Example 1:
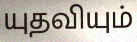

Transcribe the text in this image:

யுதவியும்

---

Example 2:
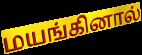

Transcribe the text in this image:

மயங்கினால்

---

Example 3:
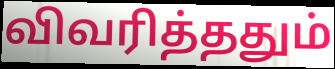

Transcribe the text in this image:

விவரித்ததும்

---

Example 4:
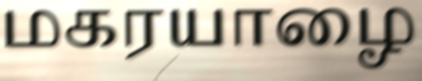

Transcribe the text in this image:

மகரயாழை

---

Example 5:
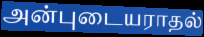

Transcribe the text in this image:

அன்புடையராதல்